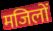
मजिलों